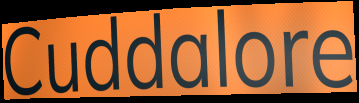
Cuddalore